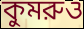
কুমরুও